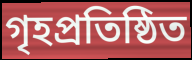
গৃহপ্রতিষ্ঠিত